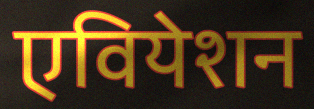
एवियेशन